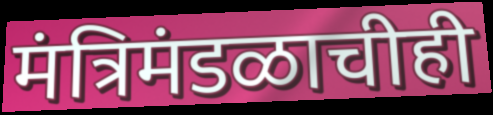
मंत्रिमंडळाचीही